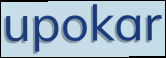
upokar